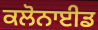
ਕਲੋਨਾਈਡ